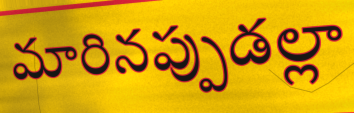
మారినప్పుడల్లా